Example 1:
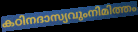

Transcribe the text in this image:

കഠിനദാസ്യവുംനിമിത്തം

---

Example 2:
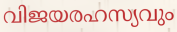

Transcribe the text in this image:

വിജയരഹസ്യവും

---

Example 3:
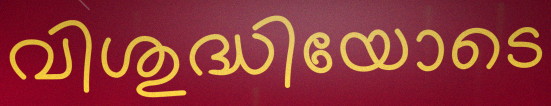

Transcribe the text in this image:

വിശുദ്ധിയോടെ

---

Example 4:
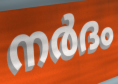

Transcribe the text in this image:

നർദം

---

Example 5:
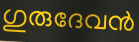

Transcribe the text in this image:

ഗുരുദേവൻ